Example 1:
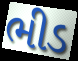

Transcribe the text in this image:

ભીડ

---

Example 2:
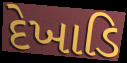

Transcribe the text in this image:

દેખાડિ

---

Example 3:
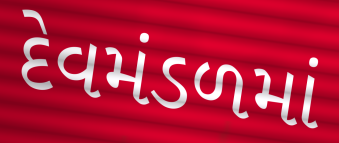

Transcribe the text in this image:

દેવમંડળમાં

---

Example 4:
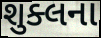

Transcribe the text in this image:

શુક્લના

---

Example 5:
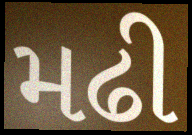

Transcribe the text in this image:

મઢી